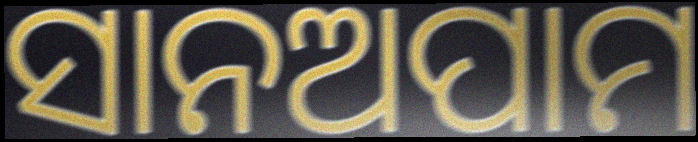
ସାନଅପାମ